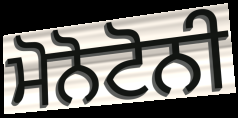
ਮੋਨੋਟੋਨੀ